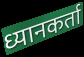
ध्यानकर्ता